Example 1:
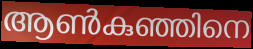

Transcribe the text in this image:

ആൺകുഞ്ഞിനെ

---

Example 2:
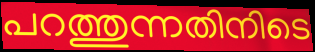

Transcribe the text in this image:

പറത്തുന്നതിനിടെ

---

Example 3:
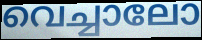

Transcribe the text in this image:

വെച്ചാലോ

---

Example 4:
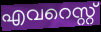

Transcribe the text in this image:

എവറെസ്റ്റ്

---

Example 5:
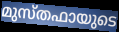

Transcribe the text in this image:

മുസ്തഫായുടെ